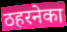
ठहरनेका